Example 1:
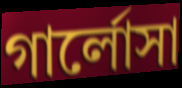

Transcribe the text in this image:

গার্লোসা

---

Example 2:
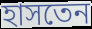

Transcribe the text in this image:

হাসতেন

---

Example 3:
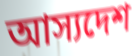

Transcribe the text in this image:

আস্যদেশ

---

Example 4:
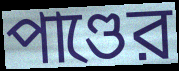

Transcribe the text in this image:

পাণ্ডের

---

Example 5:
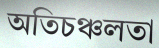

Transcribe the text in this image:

অতিচঞ্চলতা